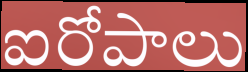
ఐరోపాలు